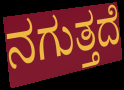
ನಗುತ್ತದೆ